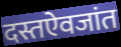
दस्तऐवजांत